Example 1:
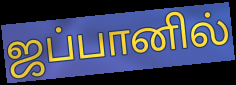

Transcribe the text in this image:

ஜப்பானில்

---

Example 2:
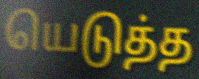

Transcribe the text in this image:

யெடுத்த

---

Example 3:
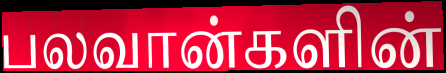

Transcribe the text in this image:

பலவான்களின்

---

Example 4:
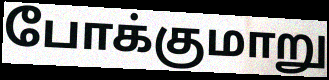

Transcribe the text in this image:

போக்குமாறு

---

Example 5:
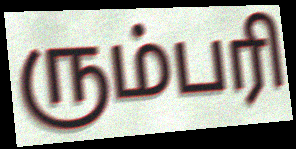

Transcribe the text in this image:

ரும்பரி